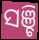
ସଞ୍ଚି